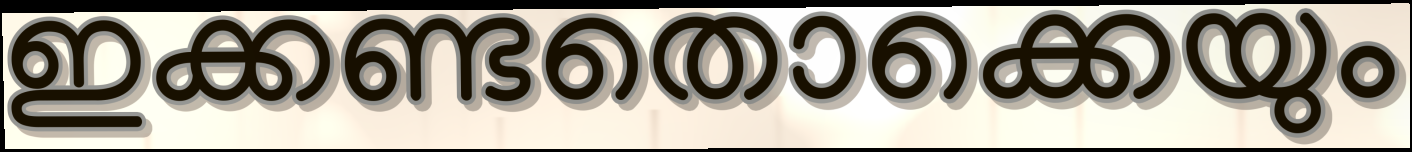
ഇക്കണ്ടതൊക്കെയും